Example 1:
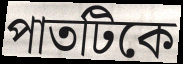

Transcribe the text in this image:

পাতটিকে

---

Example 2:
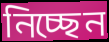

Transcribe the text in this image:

নিচ্ছেন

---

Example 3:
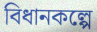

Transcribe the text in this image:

বিধানকল্পে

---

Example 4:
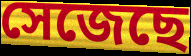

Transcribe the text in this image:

সেজেছে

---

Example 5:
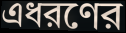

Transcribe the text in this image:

এধরণের